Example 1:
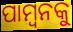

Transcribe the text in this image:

ପାମ୍ବନକୁ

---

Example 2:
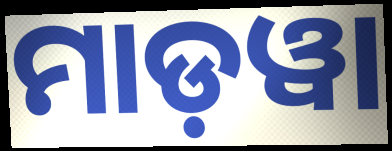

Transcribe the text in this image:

ମାଡ଼ୱା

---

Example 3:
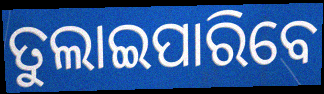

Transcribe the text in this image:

ତୁଲାଇପାରିବେ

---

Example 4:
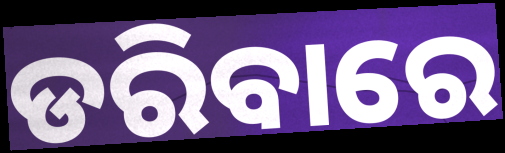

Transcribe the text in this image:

ଡରିବାରେ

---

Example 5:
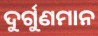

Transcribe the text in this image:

ଦୁର୍ଗୁଣମାନ